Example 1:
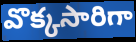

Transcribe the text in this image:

వొక్కసారిగా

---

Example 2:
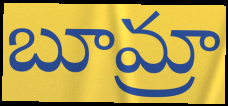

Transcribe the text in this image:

బూమ్రా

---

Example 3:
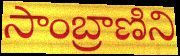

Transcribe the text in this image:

సాంబ్రాణిని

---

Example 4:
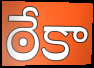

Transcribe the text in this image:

ఠేకా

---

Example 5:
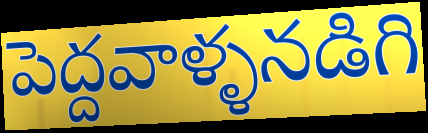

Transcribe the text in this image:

పెద్దవాళ్ళనడిగి